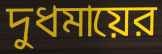
দুধমায়ের